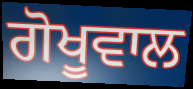
ਗੋਖੂਵਾਲ